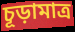
চূড়ামাত্র